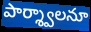
పార్శ్వాలనూ